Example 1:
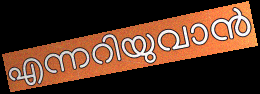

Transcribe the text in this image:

എന്നറിയുവാൻ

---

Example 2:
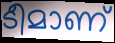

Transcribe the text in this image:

ടീമാണ്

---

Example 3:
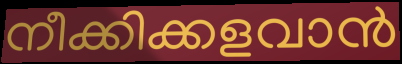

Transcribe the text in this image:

നീക്കിക്കളവാൻ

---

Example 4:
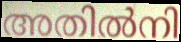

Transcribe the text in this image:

അതിൽനി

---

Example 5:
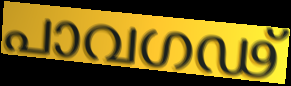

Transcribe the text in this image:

പാവഗഢ്